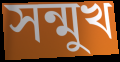
সন্মুখ